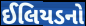
ઈલિયડનો